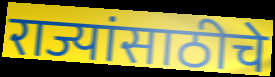
राज्यांसाठीचे